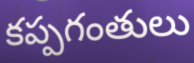
కప్పగంతులు